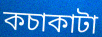
কচাকাটা